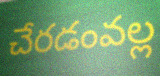
చేరడంవల్ల